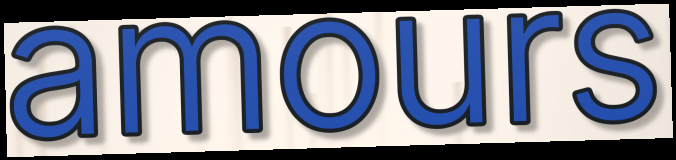
amours